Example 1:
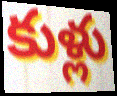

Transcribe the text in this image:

కుళ్లు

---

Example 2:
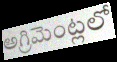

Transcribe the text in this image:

అగ్రిమెంట్లలో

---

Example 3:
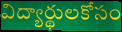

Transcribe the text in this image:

విద్యార్థులకోసం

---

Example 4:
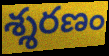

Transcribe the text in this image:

శ్శరణం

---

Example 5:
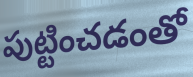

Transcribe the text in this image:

పుట్టించడంతో